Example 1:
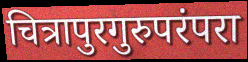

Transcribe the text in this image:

चित्रापुरगुरुपरंपरा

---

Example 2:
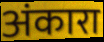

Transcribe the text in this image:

अंकारा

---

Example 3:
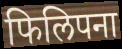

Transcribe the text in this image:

फिलिपना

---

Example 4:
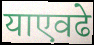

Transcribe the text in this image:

याएवढे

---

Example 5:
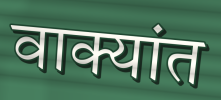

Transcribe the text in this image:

वाक्यांत